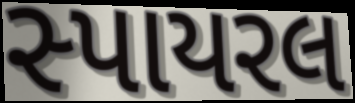
સ્પાયરલ